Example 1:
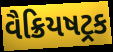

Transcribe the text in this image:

વૈક્રિયષટ્રક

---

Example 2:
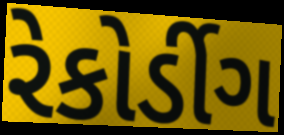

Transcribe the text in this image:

રેકોર્ડીગ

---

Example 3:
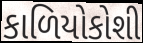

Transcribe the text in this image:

કાળિયોકોશી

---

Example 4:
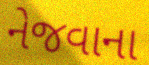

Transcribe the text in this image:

નેજવાના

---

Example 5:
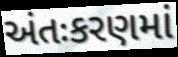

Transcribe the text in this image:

અંતઃકરણમાં